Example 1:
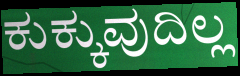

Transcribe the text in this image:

ಕುಕ್ಕುವುದಿಲ್ಲ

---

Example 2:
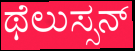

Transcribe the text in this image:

ಥೆಲುಸ್ಸನ್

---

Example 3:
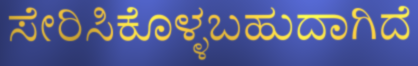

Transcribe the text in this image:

ಸೇರಿಸಿಕೊಳ್ಳಬಹುದಾಗಿದೆ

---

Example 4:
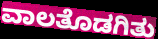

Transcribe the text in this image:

ವಾಲತೊಡಗಿತು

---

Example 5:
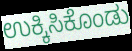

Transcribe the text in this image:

ಉಕ್ಕಿಸಿಕೊಂಡು